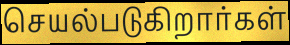
செயல்படுகிறார்கள்